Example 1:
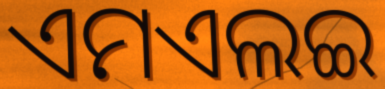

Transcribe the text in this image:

ଏମଏଲଇ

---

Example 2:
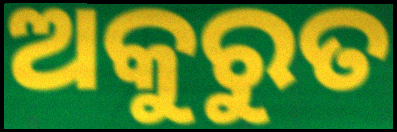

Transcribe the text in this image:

ଅକୁରୁତ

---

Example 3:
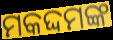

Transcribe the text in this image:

ମକଦ୍ଦମଙ୍କ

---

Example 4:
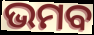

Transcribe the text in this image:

ଭମବ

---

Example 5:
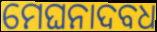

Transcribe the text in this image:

ମେଘନାଦବଧ